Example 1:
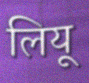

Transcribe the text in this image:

लियू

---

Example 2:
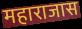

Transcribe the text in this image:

महाराजास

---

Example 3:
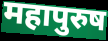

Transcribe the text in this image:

महापुरुष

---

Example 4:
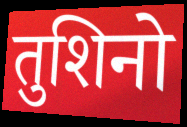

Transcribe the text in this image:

तुशिनो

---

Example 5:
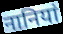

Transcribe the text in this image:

नानियां